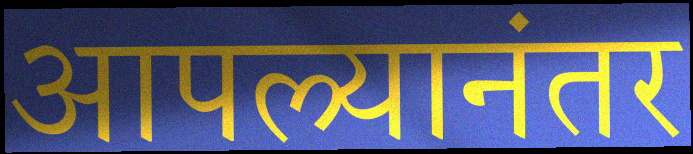
आपल्यानंतर